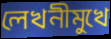
লেখনীমুখে